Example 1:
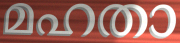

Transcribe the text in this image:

മഹതാ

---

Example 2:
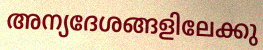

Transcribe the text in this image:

അന്യദേശങ്ങളിലേക്കു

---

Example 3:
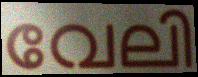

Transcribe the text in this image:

വേലി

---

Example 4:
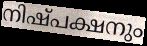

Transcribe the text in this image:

നിഷ്പക്ഷനും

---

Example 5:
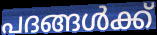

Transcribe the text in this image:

പദങ്ങൾക്ക്